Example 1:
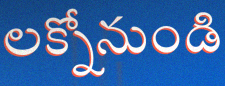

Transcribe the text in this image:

లక్నోనుండి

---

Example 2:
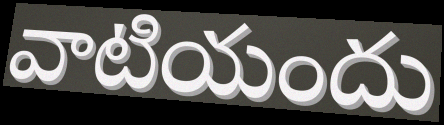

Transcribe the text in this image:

వాటియందు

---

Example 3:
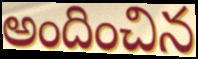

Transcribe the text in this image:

అందించిన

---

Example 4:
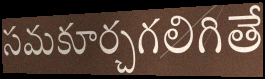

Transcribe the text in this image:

సమకూర్చగలిగితే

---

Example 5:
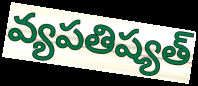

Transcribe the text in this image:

వ్యపతిష్యత్